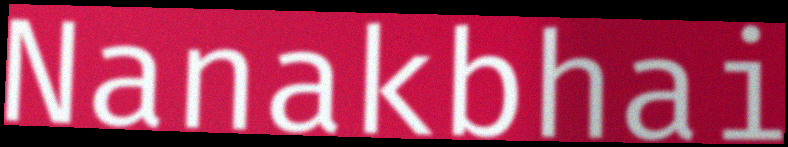
Nanakbhai